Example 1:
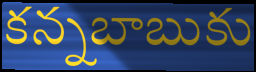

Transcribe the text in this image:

కన్నబాబుకు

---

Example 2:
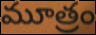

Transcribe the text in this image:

మూత్రం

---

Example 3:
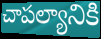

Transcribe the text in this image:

చాపల్యానికి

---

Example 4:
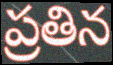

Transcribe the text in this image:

ప్రతిన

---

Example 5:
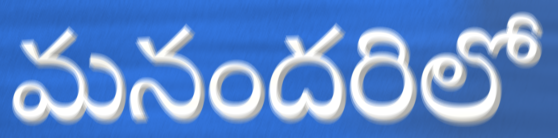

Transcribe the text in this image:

మనందరిలో